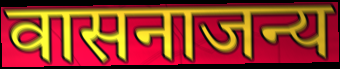
वासनाजन्य